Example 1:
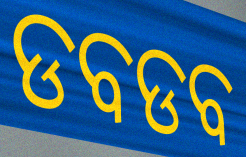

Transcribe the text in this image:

ଡବଡବ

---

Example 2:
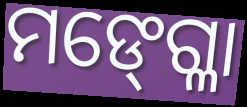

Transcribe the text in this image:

ମଙ୍ଗ୍ଳୋ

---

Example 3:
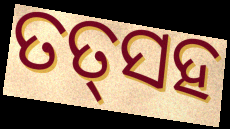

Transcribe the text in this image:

ତତ୍‌ସହ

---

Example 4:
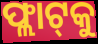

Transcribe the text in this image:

ଫ୍ଲାଟ୍‌କୁ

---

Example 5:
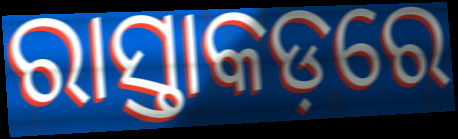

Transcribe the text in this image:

ରାସ୍ତାକଡ଼ରେ